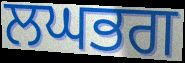
ਲਘਭਗ